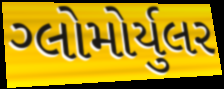
ગ્લોમોર્યુલર